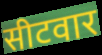
सीटवार